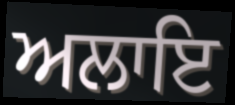
ਅਲਾਇ